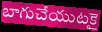
బాగుచేయుటకై